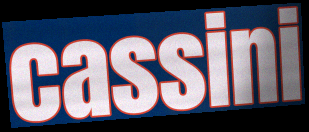
cassini